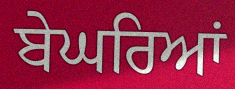
ਬੇਘਰਿਆਂ